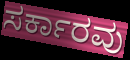
ಸರ್ಕಾರವು